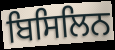
ਬਿਸਿਲਿਨ